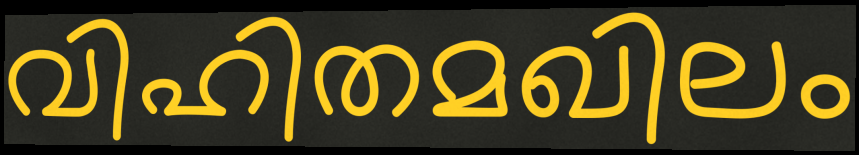
വിഹിതമഖിലം